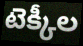
టెక్కీల